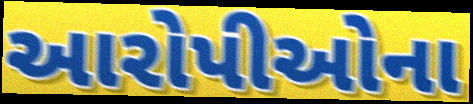
આરોપીઓના